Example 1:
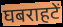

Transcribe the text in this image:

घबराहटें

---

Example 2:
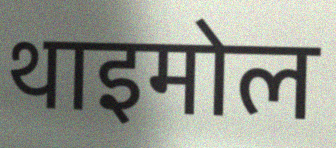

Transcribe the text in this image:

थाइमोल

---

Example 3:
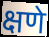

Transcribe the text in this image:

क्षणे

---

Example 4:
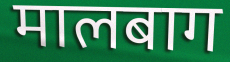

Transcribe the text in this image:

मालबाग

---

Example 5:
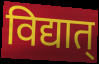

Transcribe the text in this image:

विद्यात्